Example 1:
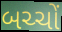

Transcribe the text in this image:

બચ્ચોં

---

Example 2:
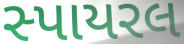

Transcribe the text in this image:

સ્પાયરલ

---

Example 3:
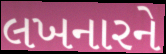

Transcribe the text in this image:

લખનારને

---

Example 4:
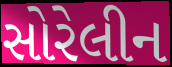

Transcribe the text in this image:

સોરેલીન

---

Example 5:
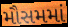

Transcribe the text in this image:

મૌસમમાં